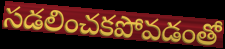
సడలించకపోవడంతో